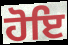
ਹੋਇ